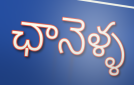
ఛానెళ్ళ